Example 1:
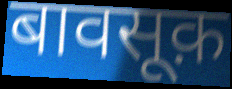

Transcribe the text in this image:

बावसूक़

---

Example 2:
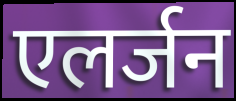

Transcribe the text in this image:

एलर्जन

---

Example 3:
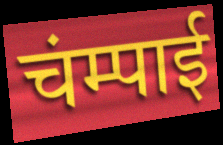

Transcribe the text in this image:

चंम्पाई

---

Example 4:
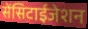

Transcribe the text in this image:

सेंसिटाईजेशन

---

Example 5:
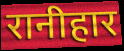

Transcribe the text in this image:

रानीहार